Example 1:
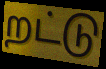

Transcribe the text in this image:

றட்டு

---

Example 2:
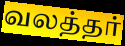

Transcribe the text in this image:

வலத்தர்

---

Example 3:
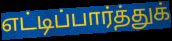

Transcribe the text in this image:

எட்டிப்பார்த்துக்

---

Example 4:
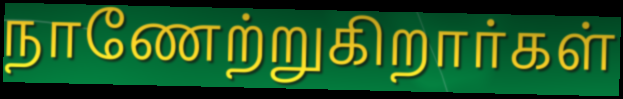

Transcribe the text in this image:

நாணேற்றுகிறார்கள்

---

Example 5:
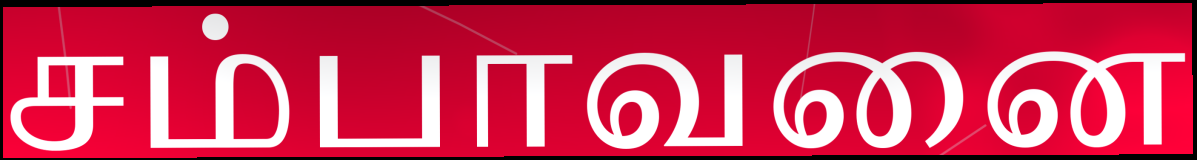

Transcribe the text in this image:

சம்பாவனை